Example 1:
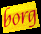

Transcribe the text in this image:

borg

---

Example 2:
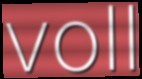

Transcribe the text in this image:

voll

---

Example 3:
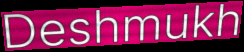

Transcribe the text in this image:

Deshmukh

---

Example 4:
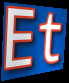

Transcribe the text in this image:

Et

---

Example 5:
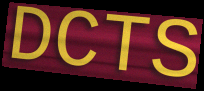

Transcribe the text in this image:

DCTS